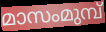
മാസംമുമ്പ്